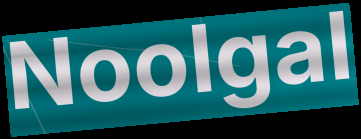
Noolgal